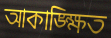
আকাঙ্ক্ষিত